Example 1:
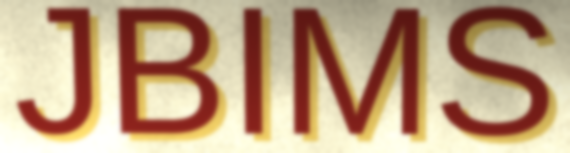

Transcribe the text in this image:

JBIMS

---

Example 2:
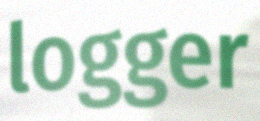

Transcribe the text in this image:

logger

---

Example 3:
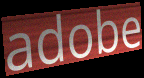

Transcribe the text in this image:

adobe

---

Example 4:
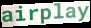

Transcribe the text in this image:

airplay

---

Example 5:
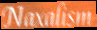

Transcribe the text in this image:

Naxalism